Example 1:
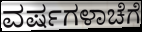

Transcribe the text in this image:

ವರ್ಷಗಳಾಚೆಗೆ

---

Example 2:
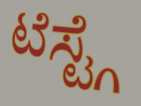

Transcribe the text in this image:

ಟೆಸ್ಟ್ಗೆ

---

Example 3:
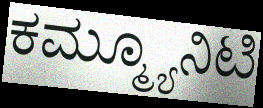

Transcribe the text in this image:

ಕಮ್ಮ್ಯೂನಿಟಿ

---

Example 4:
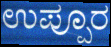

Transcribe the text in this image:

ಉಪ್ಪೂರ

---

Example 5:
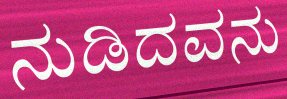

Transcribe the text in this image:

ನುಡಿದವನು